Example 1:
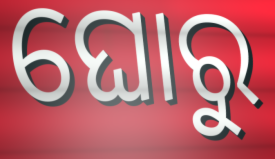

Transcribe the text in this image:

ଘୋରୁ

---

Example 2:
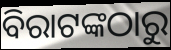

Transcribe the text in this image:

ବିରାଟଙ୍କଠାରୁ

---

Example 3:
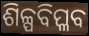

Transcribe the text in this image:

ଶିଳ୍ପବିପ୍ଳବ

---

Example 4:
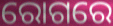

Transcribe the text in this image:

ରୋଗରେ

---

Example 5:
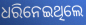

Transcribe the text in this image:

ଧରିନେଇଥିଲେ